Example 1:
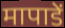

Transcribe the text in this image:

मापाडें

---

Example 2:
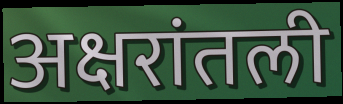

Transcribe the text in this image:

अक्षरांतली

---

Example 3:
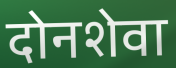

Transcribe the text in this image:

दोनशेवा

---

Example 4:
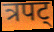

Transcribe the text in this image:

त्रपट्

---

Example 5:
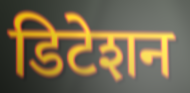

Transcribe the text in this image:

डिटेशन